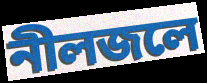
নীলজলে